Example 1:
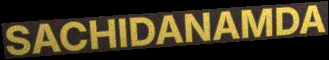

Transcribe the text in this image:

SACHIDANAMDA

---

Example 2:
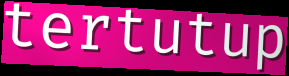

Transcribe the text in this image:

tertutup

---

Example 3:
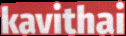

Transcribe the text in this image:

kavithai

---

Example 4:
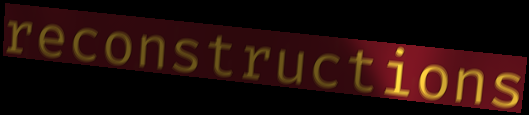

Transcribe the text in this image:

reconstructions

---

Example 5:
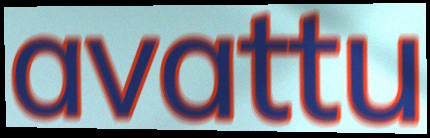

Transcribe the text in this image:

avattu